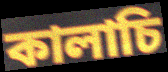
কালাচি